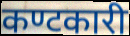
कण्टकारी